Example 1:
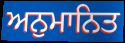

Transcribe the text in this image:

ਅਨੁਮਾਨਿਤ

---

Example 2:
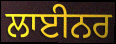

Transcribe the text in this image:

ਲਾਈਨਰ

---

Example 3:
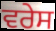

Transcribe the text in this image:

ਵਰੇਸ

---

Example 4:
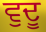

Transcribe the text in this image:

ਵੁਦੂ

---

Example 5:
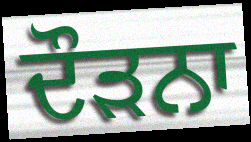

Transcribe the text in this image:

ਦੌੜਨਾ